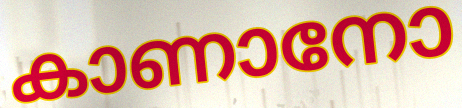
കാണാനോ